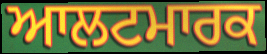
ਆਲਟਮਾਰਕ